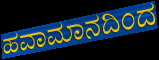
ಹವಾಮಾನದಿಂದ